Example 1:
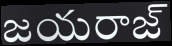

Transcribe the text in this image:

జయరాజ్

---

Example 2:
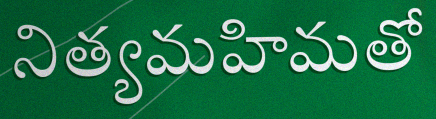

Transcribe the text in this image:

నిత్యమహిమతో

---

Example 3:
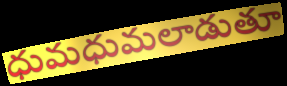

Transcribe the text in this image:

ధుమధుమలాడుతూ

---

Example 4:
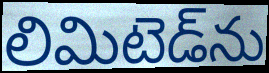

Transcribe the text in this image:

లిమిటెడ్‌ను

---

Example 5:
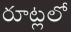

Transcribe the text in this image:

రూట్లలో